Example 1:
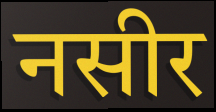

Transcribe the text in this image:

नसीर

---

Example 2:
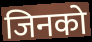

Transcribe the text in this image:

जिनको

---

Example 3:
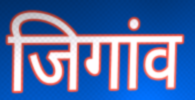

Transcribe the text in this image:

जिगांव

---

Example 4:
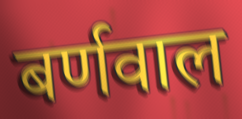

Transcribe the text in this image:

बर्णवाल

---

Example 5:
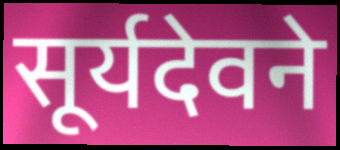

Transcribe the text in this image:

सूर्यदेवने